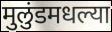
मुलुंडमधल्या